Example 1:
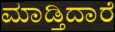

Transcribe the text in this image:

ಮಾಡ್ತಿದಾರೆ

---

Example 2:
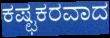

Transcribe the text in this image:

ಕಷ್ಟಕರವಾದ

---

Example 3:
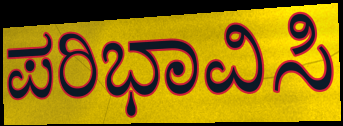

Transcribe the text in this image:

ಪರಿಭಾವಿಸಿ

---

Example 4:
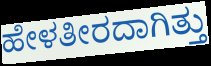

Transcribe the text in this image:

ಹೇಳತೀರದಾಗಿತ್ತು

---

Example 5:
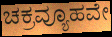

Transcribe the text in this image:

ಚಕ್ರವ್ಯೂಹವೇ